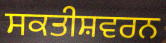
ਸਕਤੀਸ਼ਵਰਨ